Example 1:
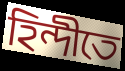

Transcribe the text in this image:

হিন্দীতে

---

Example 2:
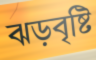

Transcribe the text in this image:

ঝড়বৃষ্টি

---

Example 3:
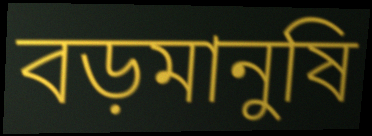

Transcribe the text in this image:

বড়মানুষি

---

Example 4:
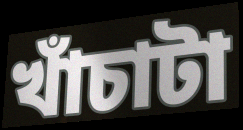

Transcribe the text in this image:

খাঁচাটা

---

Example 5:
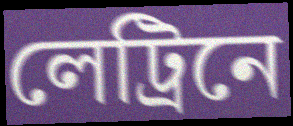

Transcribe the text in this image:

লেট্রিনে